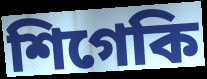
শিগেকি